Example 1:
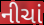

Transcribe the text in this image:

નીચાં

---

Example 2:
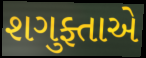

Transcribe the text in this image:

શગુફ્તાએ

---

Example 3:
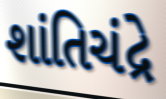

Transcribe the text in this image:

શાંતિચંદ્રે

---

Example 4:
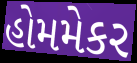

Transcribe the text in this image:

હોમમેકર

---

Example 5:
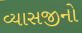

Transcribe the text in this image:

વ્યાસજીનો